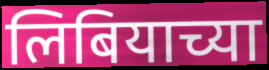
लिबियाच्या